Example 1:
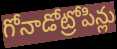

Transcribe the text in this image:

గోనాడోట్రోపిన్లు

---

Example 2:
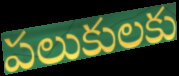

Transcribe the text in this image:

పలుకులకు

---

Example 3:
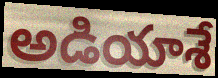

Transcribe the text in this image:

అడియాశే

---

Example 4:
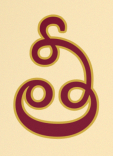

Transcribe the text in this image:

తీ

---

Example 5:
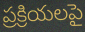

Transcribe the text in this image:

ప్రక్రియలపై